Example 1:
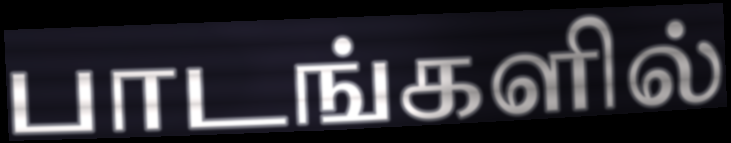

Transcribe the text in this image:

பாடங்களில்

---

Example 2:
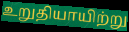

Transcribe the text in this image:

உறுதியாயிற்று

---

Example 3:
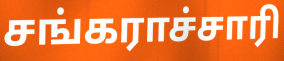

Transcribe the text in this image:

சங்கராச்சாரி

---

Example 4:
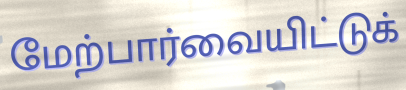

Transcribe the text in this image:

மேற்பார்வையிட்டுக்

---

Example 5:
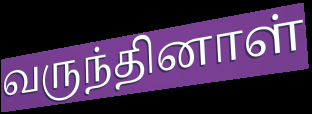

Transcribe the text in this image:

வருந்தினாள்